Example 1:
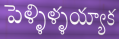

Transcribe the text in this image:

పెళ్ళిళ్ళయ్యాక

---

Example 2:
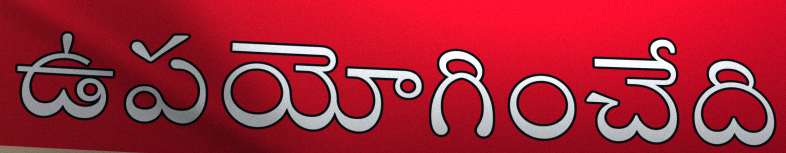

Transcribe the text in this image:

ఉపయోగించేది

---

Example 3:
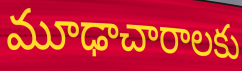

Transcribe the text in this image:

మూఢాచారాలకు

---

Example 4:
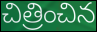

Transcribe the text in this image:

చిత్రించిన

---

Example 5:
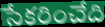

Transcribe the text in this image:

సేకరించేది